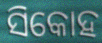
ସିକୋହ